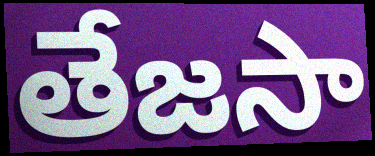
తేజసా